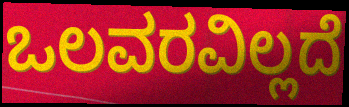
ಒಲವರವಿಲ್ಲದೆ